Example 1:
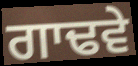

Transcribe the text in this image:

ਗਾਢਵੇ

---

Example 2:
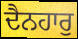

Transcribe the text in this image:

ਦੈਨਹਾਰੁ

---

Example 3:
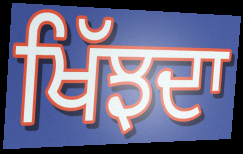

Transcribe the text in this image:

ਖਿੱਝਦਾ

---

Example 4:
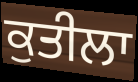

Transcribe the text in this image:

ਕੁਤੀਲਾ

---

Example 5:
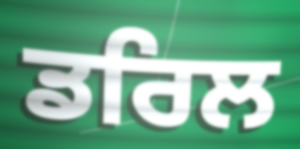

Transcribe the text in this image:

ਡਰਿਲ